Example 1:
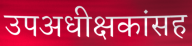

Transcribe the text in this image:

उपअधीक्षकांसह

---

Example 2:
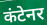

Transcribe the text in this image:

कंटेनर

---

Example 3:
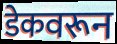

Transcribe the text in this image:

डेकवरून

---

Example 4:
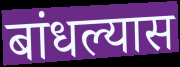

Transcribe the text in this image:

बांधल्यास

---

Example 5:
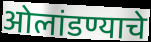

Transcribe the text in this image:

ओलांडण्याचे